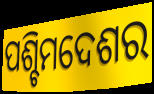
ପଶ୍ଚିମଦେଶର